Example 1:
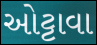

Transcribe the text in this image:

ઓટ્ટાવા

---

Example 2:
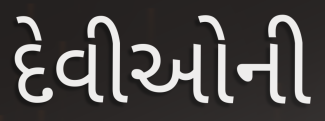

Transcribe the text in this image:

દેવીઓની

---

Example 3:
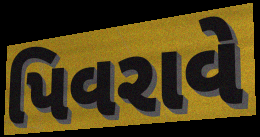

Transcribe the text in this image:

પિવરાવે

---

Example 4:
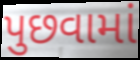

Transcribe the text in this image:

પુછવામાં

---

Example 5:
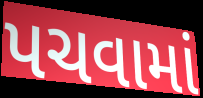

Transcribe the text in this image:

પચવામાં